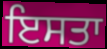
ਇਸਤਾ